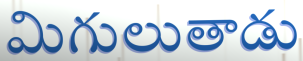
మిగులుతాడు